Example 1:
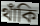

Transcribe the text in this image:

থাঁকি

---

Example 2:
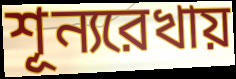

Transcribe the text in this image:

শূন্যরেখায়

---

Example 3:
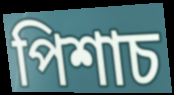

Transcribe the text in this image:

পিশাচ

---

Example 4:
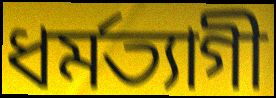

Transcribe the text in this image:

ধর্মত্যাগী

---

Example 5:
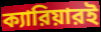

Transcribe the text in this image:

ক্যারিয়ারই